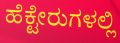
ಹೆಕ್ಟೇರುಗಳಲ್ಲಿ